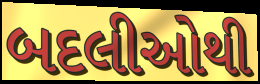
બદલીઓથી